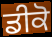
ਡੀਕੋ